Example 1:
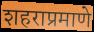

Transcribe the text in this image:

शहराप्रमाणे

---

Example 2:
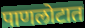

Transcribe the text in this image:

पाणलोटात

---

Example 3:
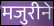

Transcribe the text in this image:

मजुरीने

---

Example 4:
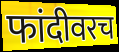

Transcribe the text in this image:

फांदीवरच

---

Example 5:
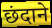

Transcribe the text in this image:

छंदाने